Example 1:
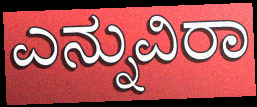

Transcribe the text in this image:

ಎನ್ನುವಿರಾ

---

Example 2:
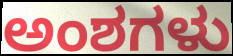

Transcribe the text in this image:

ಅಂಶಗಳು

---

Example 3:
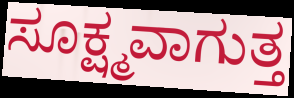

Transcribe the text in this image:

ಸೂಕ್ಷ್ಮವಾಗುತ್ತ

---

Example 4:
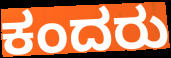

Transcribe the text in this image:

ಕಂದರು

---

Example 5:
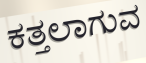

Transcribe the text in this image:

ಕತ್ತಲಾಗುವ